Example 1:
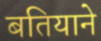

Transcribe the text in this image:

बतियाने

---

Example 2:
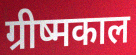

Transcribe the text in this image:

ग्रीष्मकाल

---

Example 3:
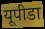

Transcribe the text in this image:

यूपीडा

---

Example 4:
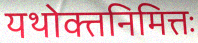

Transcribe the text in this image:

यथोक्तनिमित्तः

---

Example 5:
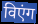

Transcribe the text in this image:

विएंग